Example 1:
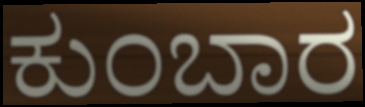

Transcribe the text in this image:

ಕುಂಬಾರ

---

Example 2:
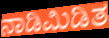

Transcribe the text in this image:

ನಾಡಿಮಿಡಿತ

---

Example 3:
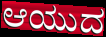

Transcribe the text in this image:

ಆಯುದ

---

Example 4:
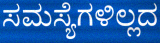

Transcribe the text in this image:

ಸಮಸ್ಯೆಗಳಿಲ್ಲದ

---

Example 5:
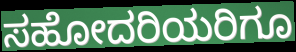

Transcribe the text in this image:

ಸಹೋದರಿಯರಿಗೂ